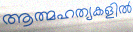
ആത്മഹത്യകളിൽ